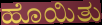
ಹೊಯಿತು